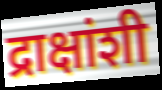
द्राक्षांशी